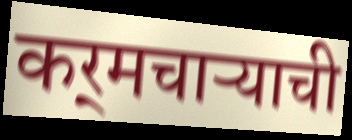
कर्मचाऱ्याची